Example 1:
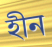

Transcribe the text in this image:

হীন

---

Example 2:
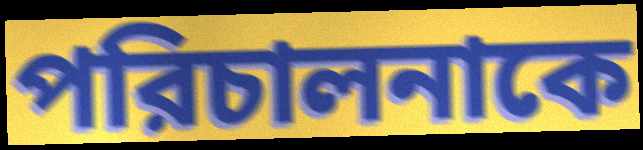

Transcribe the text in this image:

পরিচালনাকে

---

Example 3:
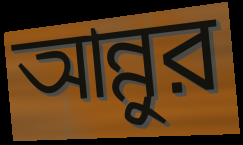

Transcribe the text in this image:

আন্নুর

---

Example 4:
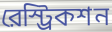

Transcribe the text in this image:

রেস্ট্রিকশন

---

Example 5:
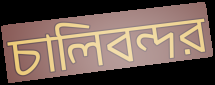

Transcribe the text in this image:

চালিবন্দর